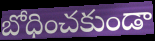
బోధించకుండా